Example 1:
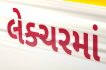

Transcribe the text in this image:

લેક્ચરમાં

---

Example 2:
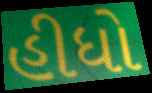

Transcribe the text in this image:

હીધો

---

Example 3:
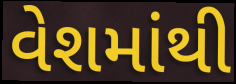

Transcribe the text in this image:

વેશમાંથી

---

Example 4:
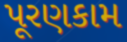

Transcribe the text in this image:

પૂરણકામ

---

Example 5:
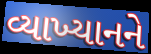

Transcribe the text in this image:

વ્યાખ્યાનને